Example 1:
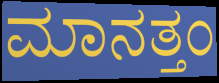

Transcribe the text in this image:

ಮಾನತ್ತಂ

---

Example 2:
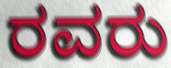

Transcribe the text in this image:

ರವರು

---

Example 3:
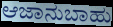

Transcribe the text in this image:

ಆಜಾನುಬಾಹು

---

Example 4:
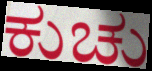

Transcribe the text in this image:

ಕುಚು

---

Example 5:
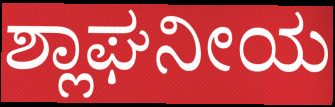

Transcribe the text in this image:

ಶ್ಲಾಘನೀಯ